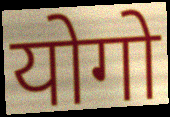
योगो